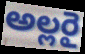
అల్లరై